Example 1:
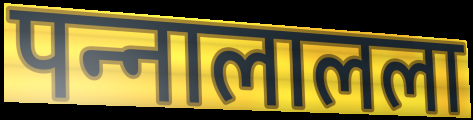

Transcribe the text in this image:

पन्नालालला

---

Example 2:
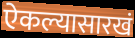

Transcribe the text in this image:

ऐकल्यासारखं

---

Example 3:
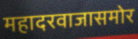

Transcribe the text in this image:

महादरवाजासमोर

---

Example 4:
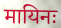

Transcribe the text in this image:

मायिनः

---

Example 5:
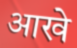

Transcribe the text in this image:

आखे